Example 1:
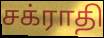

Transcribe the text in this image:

சக்ராதி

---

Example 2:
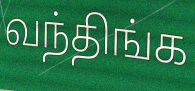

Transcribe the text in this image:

வந்திங்க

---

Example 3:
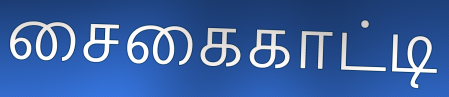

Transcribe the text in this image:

சைகைகாட்டி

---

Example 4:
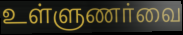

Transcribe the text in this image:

உள்ளுணர்வை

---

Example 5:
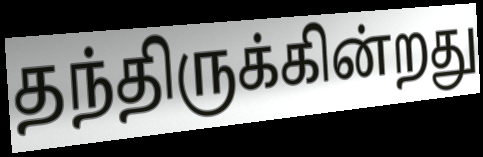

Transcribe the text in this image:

தந்திருக்கின்றது